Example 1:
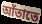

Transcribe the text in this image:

আঁতাতে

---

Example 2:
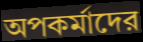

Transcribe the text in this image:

অপকর্মাদের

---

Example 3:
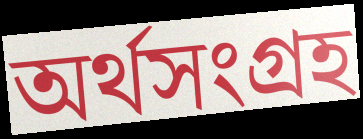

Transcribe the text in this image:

অর্থসংগ্রহ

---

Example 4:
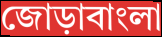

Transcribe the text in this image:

জোড়াবাংলা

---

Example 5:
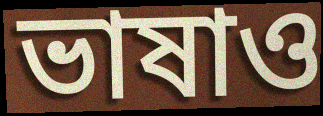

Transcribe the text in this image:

ভাষাও